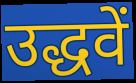
उद्धवें